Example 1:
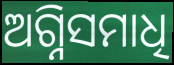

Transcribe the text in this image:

ଅଗ୍ନିସମାଧି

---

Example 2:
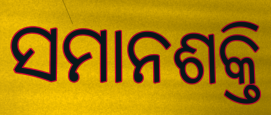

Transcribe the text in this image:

ସମାନଶକ୍ତି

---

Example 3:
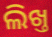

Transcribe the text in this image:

ଲିଖ୍ତ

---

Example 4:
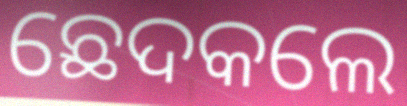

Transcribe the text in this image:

ଛେଦକଲେ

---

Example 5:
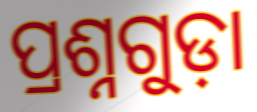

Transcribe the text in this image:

ପ୍ରଶ୍ନଗୁଡ଼ା